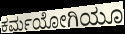
ಕರ್ಮಯೋಗಿಯೂ